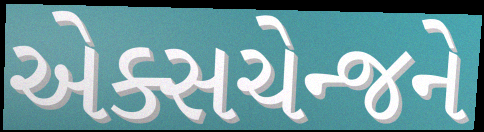
એક્સચેન્જને